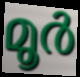
മൂർ